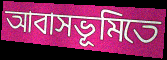
আবাসভূমিতে